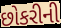
છોકરીની